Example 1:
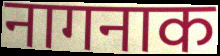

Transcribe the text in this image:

नागनाक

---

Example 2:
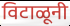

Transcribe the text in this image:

विटाळूनी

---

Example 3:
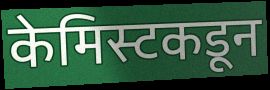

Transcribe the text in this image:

केमिस्टकडून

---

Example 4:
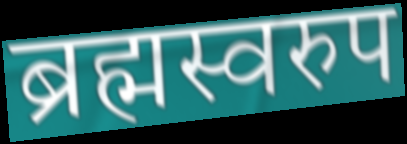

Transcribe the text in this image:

ब्रह्मस्वरुप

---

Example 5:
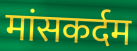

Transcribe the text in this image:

मांसकर्दम